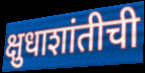
क्षुधाशांतीची